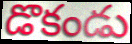
డొకండు